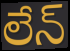
లేన్